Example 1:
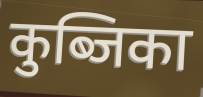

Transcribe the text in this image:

कुब्जिका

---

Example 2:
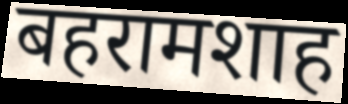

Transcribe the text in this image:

बहरामशाह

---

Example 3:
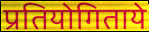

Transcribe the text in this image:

प्रतियोगिताये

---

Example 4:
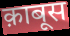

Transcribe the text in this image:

क़ाबूस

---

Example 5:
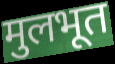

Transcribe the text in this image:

मुलभूत